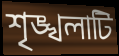
শৃঙ্খলাটি